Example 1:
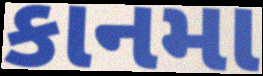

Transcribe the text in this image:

કાનમા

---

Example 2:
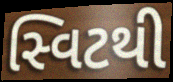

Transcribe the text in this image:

સ્વિટથી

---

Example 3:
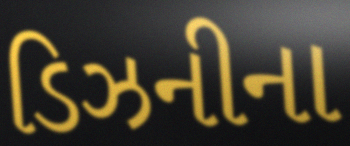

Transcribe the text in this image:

ડિઝનીના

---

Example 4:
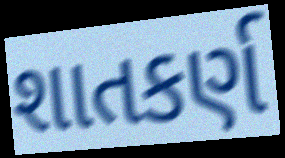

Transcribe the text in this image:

શાતકર્ણ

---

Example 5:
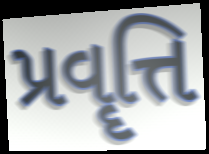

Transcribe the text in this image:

પ્રવૄત્તિ